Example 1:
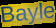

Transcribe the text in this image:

Bayle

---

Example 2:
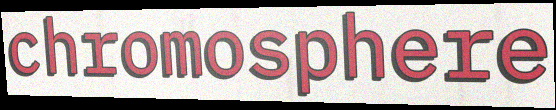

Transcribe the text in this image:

chromosphere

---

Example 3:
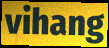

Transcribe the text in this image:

vihang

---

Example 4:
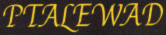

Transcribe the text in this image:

PTALEWAD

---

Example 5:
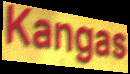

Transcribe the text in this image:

Kangas